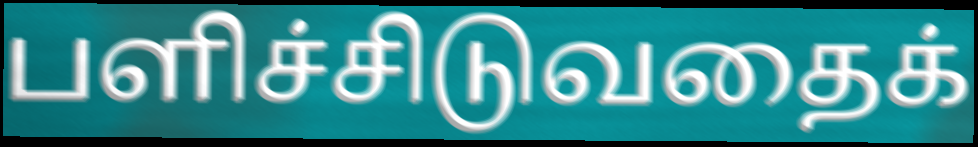
பளிச்சிடுவதைக்